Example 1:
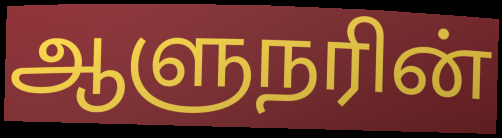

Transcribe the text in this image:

ஆளுநரின்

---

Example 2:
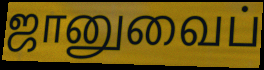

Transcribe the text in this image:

ஜானுவைப்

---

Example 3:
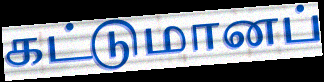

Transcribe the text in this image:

கட்டுமானப்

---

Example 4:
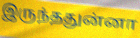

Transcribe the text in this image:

இருந்ததுன்னா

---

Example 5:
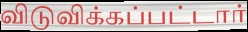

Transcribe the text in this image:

விடுவிக்கப்பட்டார்